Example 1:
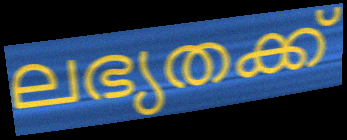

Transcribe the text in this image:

ലഭ്യതക്ക്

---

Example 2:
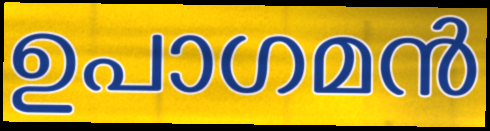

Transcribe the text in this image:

ഉപാഗമൻ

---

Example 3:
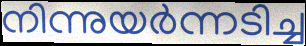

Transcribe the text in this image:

നിന്നുയർന്നടിച്ച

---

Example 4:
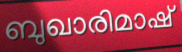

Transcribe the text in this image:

ബുഖാരിമാഷ്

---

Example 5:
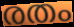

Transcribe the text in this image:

രതം